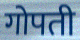
गोपती